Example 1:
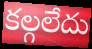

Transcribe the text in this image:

కల్గలేదు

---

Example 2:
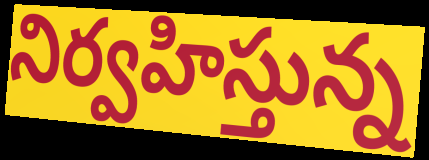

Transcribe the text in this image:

నిర్వహిస్తున్న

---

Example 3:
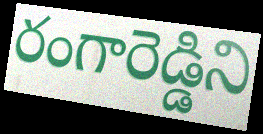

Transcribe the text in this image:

రంగారెడ్డిని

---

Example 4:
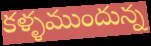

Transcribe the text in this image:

కళ్ళముందున్న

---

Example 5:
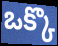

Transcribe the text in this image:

ఒక్కొ